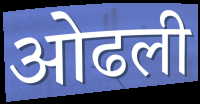
ओढली